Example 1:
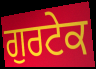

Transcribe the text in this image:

ਗੁਰਟੇਕ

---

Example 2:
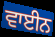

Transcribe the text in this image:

ਵਾਈਨ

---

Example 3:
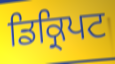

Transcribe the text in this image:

ਡਿਕ੍ਰਿਪਟ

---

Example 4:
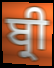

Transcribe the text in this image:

ਬ੍ਰੀ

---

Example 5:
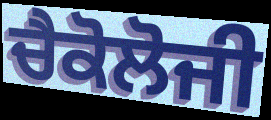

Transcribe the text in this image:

ਚੈਕੋਲੋਜੀ